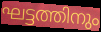
ഘട്ടത്തിനും